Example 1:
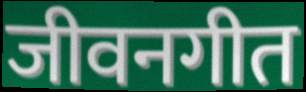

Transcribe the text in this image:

जीवनगीत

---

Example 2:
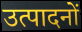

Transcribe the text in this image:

उत्पादनों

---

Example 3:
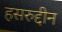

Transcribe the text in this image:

हसरुद्दीन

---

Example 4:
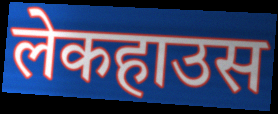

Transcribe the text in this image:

लेकहाउस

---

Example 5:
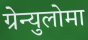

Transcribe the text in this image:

ग्रेन्युलोमा